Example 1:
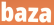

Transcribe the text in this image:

baza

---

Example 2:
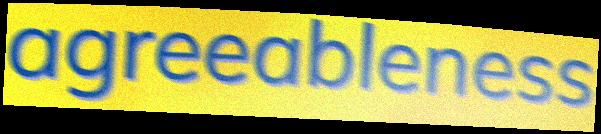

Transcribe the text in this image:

agreeableness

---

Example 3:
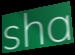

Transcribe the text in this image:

sha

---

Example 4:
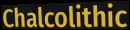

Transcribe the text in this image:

Chalcolithic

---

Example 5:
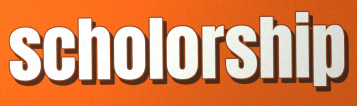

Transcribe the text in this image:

scholorship